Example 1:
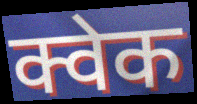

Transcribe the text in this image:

क्वेक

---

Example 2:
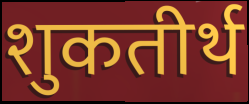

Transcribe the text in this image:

शुकतीर्थ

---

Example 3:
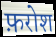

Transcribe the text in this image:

फ़रोश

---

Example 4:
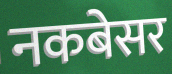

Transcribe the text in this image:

नकबेसर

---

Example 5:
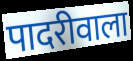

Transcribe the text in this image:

पादरीवाला